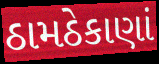
ઠામઠેકાણાં